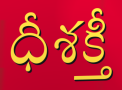
ధీశక్తీ